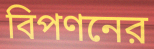
বিপণনের